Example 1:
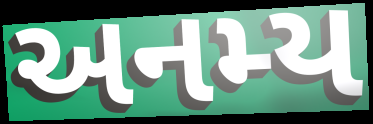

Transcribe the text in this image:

અનમ્ય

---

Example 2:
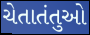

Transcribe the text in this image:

ચેતાતંતુઓ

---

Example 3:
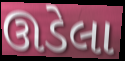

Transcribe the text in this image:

ઊડેલા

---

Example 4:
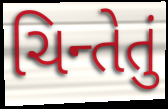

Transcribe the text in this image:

ચિન્તેતું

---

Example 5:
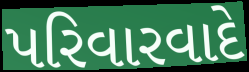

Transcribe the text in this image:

પરિવારવાદે